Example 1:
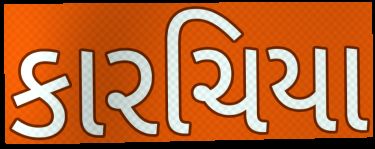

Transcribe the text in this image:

કારચિયા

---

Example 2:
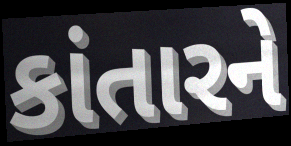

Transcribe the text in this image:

કાંતારને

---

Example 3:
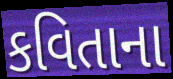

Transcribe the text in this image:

કવિતાના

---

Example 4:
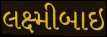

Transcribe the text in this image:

લક્ષ્મીબાઇ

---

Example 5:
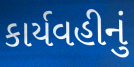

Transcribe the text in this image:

કાર્યવહીનું